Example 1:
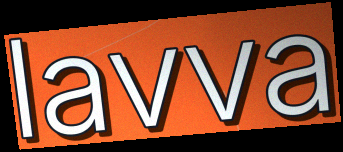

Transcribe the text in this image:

lavva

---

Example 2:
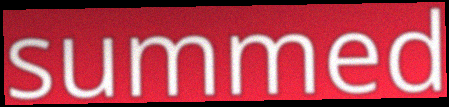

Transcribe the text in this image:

summed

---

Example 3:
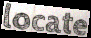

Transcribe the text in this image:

locate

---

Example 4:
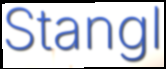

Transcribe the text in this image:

Stangl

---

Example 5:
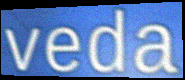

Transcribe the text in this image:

veda